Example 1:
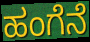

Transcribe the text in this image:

ಹಂಗೆನೆ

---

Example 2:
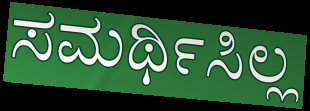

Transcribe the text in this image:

ಸಮರ್ಥಿಸಿಲ್ಲ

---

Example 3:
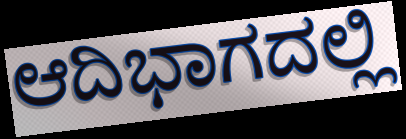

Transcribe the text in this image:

ಆದಿಭಾಗದಲ್ಲಿ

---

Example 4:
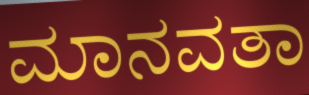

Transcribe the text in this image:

ಮಾನವತಾ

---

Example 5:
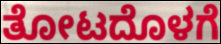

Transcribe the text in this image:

ತೋಟದೊಳಗೆ